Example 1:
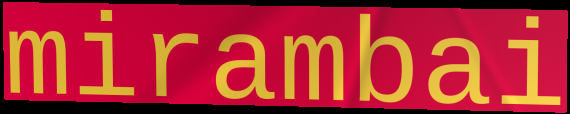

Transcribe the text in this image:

mirambai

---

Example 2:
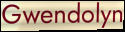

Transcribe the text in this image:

Gwendolyn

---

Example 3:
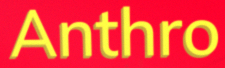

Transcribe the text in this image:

Anthro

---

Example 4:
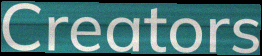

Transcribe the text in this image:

Creators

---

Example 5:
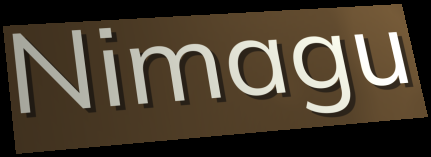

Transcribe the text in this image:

Nimagu